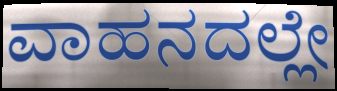
ವಾಹನದಲ್ಲೇ